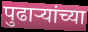
पुढार्‍यांच्या